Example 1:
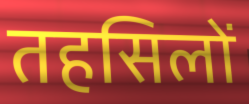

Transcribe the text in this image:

तहसिलों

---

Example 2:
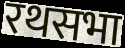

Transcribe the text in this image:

रथसभा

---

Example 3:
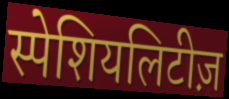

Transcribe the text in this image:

स्पेशियलिटीज़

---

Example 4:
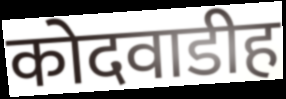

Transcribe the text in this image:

कोदवाडीह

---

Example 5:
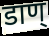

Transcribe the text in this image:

डाण्